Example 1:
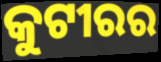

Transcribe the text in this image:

କୁଟୀରର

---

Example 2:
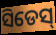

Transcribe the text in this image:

ସିଡେସ୍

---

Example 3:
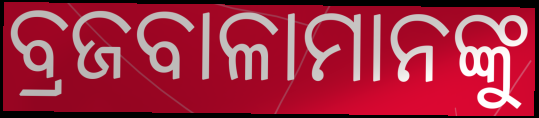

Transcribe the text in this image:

ବ୍ରଜବାଳାମାନଙ୍କୁ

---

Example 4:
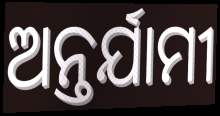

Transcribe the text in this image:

ଅନ୍ତର୍ଯାମୀ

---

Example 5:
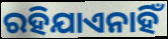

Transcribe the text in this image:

ରହିଯାଏନାହିଁ